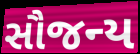
સૌજન્ય